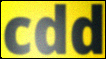
cdd